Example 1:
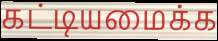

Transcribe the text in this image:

கட்டியமைக்க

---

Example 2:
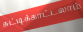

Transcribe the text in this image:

சுட்டிக்காட்டலாம்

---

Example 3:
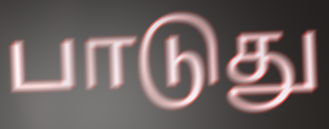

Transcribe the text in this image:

பாடுது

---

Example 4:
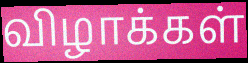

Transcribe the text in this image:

விழாக்கள்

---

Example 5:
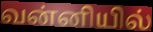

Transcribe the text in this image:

வன்னியில்